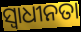
ସ୍ବାଧୀନତା